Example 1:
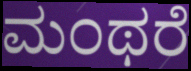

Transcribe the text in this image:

ಮಂಥರೆ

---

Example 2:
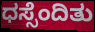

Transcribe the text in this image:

ಧಸ್ಸೆಂದಿತು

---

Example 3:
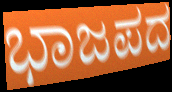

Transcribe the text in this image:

ಭಾಜಪದ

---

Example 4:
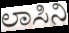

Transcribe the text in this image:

ಲಾಸಿನಿ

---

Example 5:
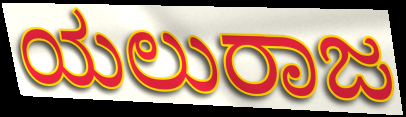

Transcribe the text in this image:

ಯಲುರಾಜ